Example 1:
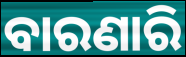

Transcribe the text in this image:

ବାରଣାରି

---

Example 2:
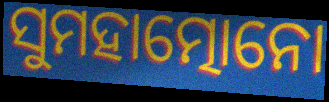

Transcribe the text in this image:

ସୁମହାତ୍ମୋନୋ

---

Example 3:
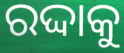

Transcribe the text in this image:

ରଦ୍ଦାକୁ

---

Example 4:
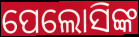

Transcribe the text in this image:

ପେଲୋସିଙ୍କ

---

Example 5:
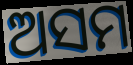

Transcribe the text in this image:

ଅସମ